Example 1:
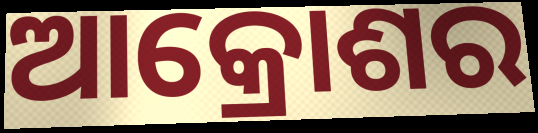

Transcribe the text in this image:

ଆକ୍ରୋଶର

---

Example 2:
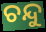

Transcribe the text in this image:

ଚନ୍ଦୁ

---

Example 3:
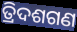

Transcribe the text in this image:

ତ୍ରିଦଶଗଣ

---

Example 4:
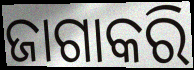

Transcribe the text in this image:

ଜାଗାକରି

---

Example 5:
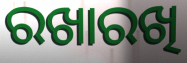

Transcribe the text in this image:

ରଖାରଖି